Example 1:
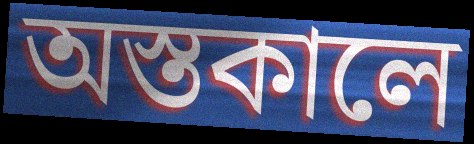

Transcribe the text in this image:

অস্তকালে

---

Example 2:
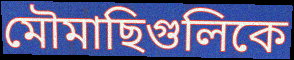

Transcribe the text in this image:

মৌমাছিগুলিকে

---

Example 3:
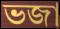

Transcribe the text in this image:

ভজা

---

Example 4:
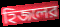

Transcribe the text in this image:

হিজলের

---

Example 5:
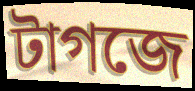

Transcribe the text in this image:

টাগজে